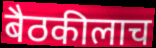
बैठकीलाच